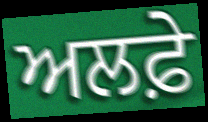
ਅਲਫ਼ੇ